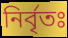
নির্বৃতঃ